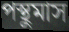
পস্থুমাস